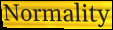
Normality